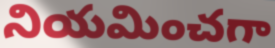
నియమించగా